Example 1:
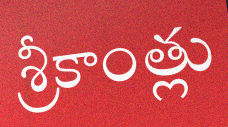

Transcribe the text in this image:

శ్రీకాంత్లు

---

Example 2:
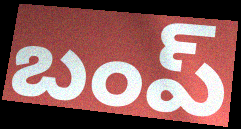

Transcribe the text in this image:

బంప్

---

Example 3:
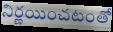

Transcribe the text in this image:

నిర్ణయించటంతో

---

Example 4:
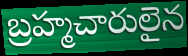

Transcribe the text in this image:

బ్రహ్మచారులైన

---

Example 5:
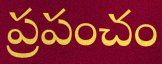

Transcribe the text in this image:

ప్రపంచం